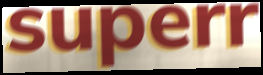
superr